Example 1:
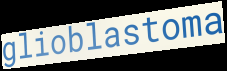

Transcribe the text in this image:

glioblastoma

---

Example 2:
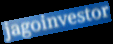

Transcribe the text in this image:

jagoinvestor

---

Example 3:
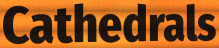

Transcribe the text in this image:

Cathedrals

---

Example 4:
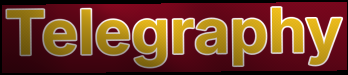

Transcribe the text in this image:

Telegraphy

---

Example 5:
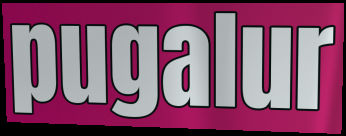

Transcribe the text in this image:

pugalur